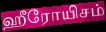
ஹீரோயிசம்